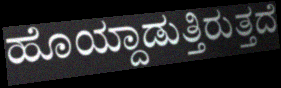
ಹೊಯ್ದಾಡುತ್ತಿರುತ್ತದೆ